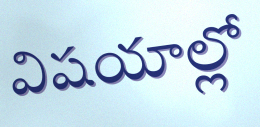
విషయాల్లో